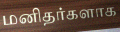
மனிதர்களாக